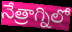
నేత్రాగ్నిలో